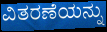
ವಿತರಣೆಯನ್ನು